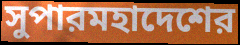
সুপারমহাদেশের